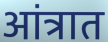
आंत्रात